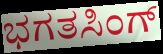
ಭಗತಸಿಂಗ್